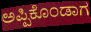
ಅಪ್ಪಿಕೊಂಡಾಗ